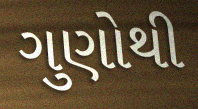
ગુણોથી